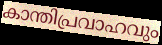
കാന്തിപ്രവാഹവും